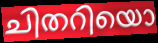
ചിതറിയൊ